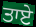
ਤਾਏ